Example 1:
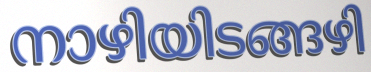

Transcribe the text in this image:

നാഴിയിടങ്ങഴി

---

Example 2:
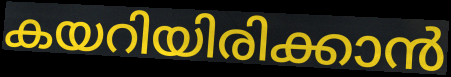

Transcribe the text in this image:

കയറിയിരിക്കാൻ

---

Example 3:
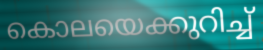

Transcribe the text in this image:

കൊലയെക്കുറിച്ച്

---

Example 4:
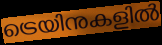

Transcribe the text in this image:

ട്രെയിനുകളിൽ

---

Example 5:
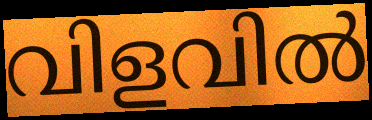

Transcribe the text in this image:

വിളവിൽ